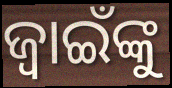
ଜ୍ବାଇଁଙ୍କୁ